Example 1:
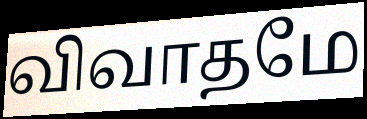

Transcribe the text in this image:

விவாதமே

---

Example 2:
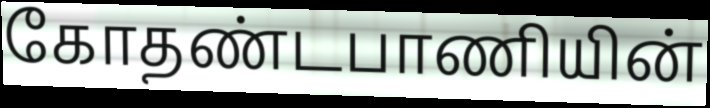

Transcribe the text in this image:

கோதண்டபாணியின்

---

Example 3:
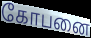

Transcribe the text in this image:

கோபனை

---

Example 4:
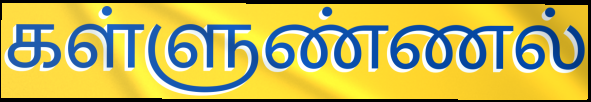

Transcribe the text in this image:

கள்ளுண்ணல்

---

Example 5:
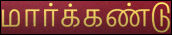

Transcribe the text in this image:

மார்க்கண்டு